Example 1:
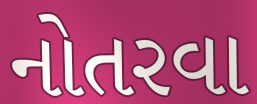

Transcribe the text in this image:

નોતરવા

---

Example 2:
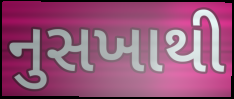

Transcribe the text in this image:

નુસખાથી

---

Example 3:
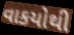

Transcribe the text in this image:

વાકયોથી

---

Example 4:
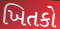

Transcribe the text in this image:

ખિતકો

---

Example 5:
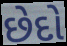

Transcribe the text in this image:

છેદો